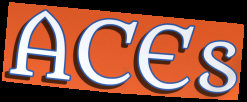
ACEs